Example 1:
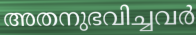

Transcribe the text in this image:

അതനുഭവിച്ചവർ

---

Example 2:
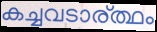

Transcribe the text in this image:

കച്ചവടാര്ത്ഥം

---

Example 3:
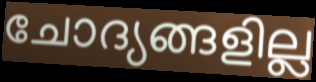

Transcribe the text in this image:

ചോദ്യങ്ങളില്ല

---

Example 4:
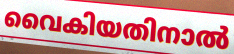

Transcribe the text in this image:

വൈകിയതിനാൽ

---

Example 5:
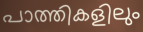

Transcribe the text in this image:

പാത്തികളിലും